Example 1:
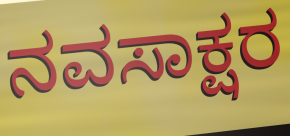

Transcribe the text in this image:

ನವಸಾಕ್ಷರ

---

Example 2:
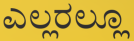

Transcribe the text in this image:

ಎಲ್ಲರಲ್ಲೂ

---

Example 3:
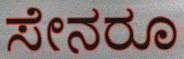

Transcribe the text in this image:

ಸೇನರೂ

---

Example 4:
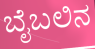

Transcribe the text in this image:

ಬೈಬಲಿನ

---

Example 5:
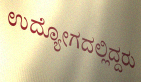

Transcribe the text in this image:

ಉದ್ಯೋಗದಲ್ಲಿದ್ದರು